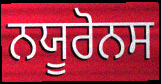
ਨਯੂਰੋਨਸ